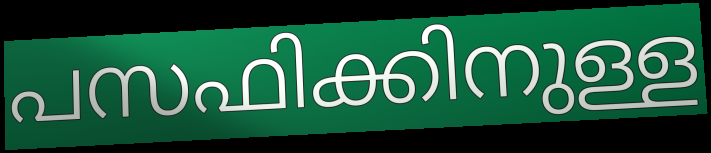
പസഫിക്കിനുള്ള